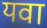
यवा